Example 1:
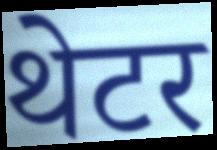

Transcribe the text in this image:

थेटर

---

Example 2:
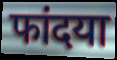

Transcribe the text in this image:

फांदया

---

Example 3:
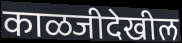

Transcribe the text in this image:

काळजीदेखील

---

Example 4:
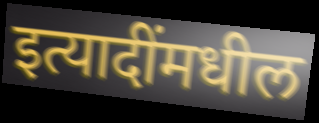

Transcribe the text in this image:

इत्यादींमधील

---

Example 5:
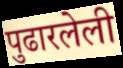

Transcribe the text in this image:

पुढारलेली